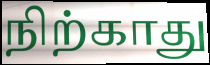
நிற்காது